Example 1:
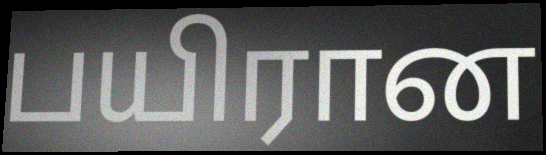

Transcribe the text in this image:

பயிரான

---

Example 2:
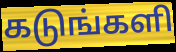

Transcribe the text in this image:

கடுங்களி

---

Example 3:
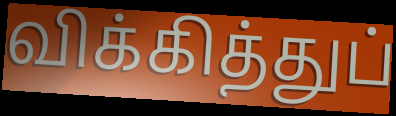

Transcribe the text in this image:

விக்கித்துப்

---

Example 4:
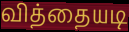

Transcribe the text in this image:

வித்தையடி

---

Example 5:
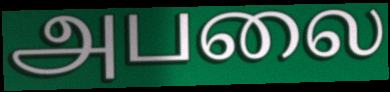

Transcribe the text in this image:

அபலை